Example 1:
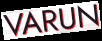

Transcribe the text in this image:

VARUN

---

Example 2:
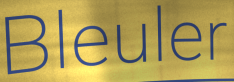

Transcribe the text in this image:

Bleuler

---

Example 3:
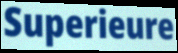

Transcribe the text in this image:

Superieure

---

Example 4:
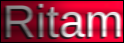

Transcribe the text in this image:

Ritam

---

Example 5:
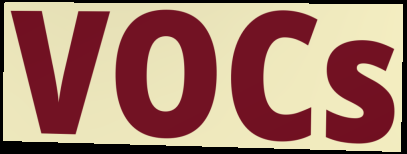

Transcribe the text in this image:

VOCs